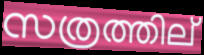
സത്രത്തില്